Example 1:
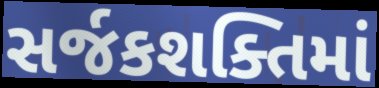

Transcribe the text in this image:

સર્જકશક્તિમાં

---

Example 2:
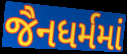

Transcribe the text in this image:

જૈનધર્મમાં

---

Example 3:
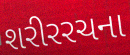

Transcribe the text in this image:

શરીરરચના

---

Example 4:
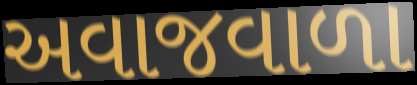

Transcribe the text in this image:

અવાજવાળા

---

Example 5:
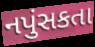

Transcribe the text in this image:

નપુંસકતા